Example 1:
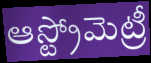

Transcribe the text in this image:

ఆస్ట్రోమెట్రీ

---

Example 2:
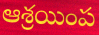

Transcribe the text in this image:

ఆశ్రయింప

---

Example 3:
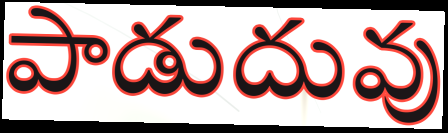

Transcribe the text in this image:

పాడుదువు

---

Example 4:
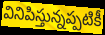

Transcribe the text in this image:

వినిపిస్తున్నప్పటికీ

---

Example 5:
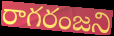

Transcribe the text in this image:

రాగరంజని